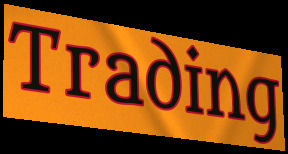
Trading